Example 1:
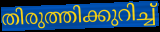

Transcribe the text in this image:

തിരുത്തിക്കുറിച്ച്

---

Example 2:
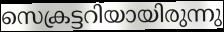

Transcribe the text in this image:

സെക്രട്ടറിയായിരുന്നു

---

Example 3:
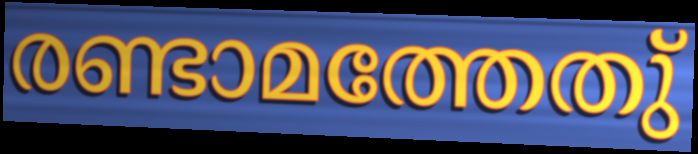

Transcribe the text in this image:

രണ്ടാമത്തേതു്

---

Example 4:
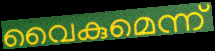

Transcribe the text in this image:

വൈകുമെന്ന്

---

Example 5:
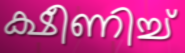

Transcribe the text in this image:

ക്ഷീണിച്ച്